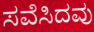
ಸವೆಸಿದವು